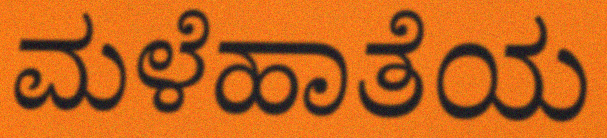
ಮಳೆಹಾತೆಯ